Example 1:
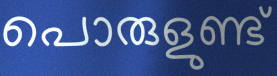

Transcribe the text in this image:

പൊരുളുണ്ട്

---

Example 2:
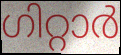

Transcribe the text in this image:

ഗിറ്റാർ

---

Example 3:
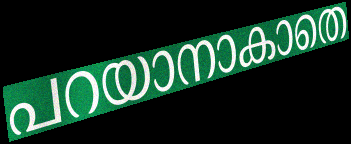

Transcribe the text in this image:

പറയാനാകാതെ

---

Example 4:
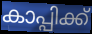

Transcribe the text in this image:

കാപ്പിക്ക്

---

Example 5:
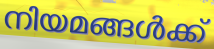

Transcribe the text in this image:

നിയമങ്ങൾക്ക്